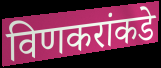
विणकरांकडे